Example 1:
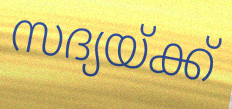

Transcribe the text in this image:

സദ്യയ്ക്ക്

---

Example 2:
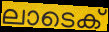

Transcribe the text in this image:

ലാടെക്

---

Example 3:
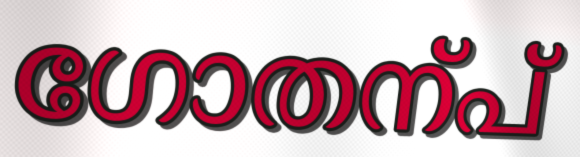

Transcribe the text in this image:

ഗോതന്പ്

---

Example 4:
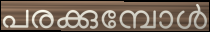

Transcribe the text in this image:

പരക്കുമ്പോൾ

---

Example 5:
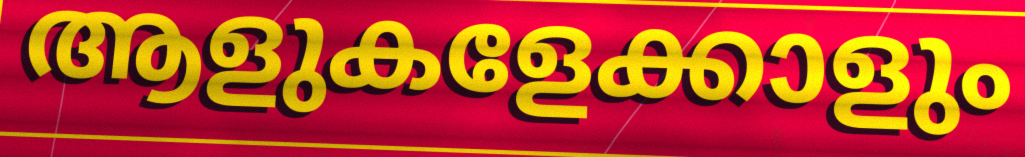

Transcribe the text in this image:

ആളുകളേക്കാളും